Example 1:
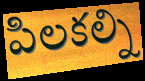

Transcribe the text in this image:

పిలకల్ని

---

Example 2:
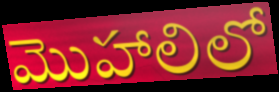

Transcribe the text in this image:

మొహాలిలో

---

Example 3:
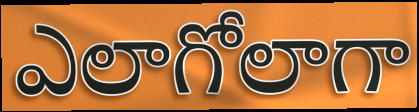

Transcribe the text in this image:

ఎలాగోలాగా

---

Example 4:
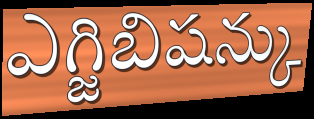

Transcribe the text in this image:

ఎగ్జిబిషన్కు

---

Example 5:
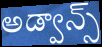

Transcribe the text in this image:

అడ్వాన్స్